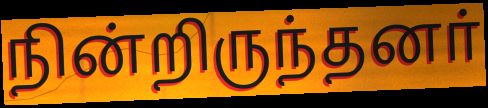
நின்றிருந்தனர்